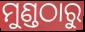
ମୁଣ୍ଡଠାରୁ